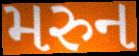
મરુન